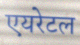
एयरेटल